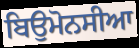
ਬਿਉਮੋਨਸੀਆ